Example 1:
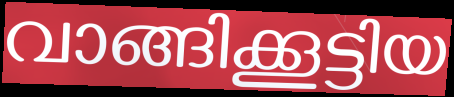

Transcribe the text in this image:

വാങ്ങിക്കൂട്ടിയ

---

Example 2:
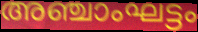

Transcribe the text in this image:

അഞ്ചാംഘട്ടം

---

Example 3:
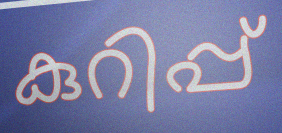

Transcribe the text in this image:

കുറിപ്പ്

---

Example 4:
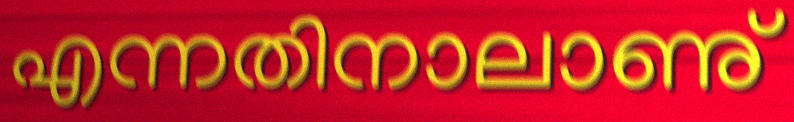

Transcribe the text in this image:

എന്നതിനാലാണു്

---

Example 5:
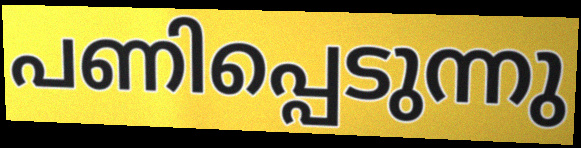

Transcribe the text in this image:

പണിപ്പെടുന്നു